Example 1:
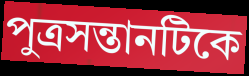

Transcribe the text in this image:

পুত্রসন্তানটিকে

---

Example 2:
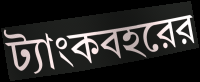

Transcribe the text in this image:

ট্যাংকবহরের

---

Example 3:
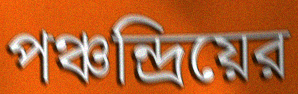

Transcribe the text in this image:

পঞ্চন্দ্রিয়ের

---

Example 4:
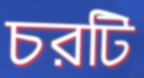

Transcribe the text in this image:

চরটি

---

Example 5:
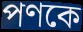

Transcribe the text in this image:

পণকে